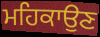
ਮਹਿਕਾਉਣ